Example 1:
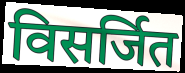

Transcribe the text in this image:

विसर्जित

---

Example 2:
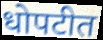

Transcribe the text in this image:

धोपटीत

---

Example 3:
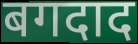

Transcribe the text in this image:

बगदाद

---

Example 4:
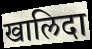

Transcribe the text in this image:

खालिदा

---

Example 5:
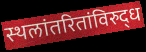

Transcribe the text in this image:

स्थलांतरितांविरुद्ध